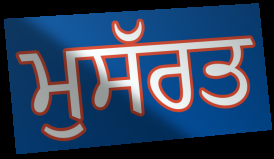
ਮੁਸੱਰਤ